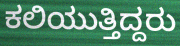
ಕಲಿಯುತ್ತಿದ್ದರು